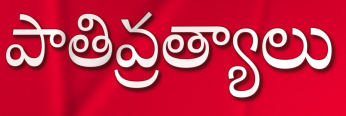
పాతివ్రత్యాలు